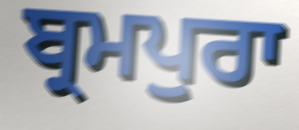
ਬ੍ਰਮਪੁਰਾ